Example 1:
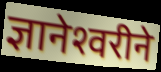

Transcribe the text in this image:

ज्ञानेश्वरीने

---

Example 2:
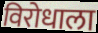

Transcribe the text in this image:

विरोधाला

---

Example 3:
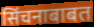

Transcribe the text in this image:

सिंचनाबाबत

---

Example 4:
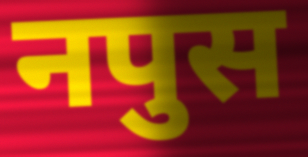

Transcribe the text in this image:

नपुस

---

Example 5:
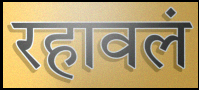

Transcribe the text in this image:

रहावलं